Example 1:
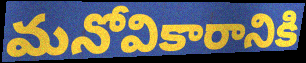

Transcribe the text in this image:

మనోవికారానికి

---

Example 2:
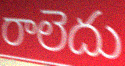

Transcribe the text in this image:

రాలెదు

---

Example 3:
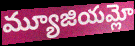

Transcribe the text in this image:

మ్యూజియమ్లో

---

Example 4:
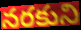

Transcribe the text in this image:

నరకుని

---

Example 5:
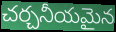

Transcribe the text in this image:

చర్చనీయమైన